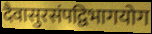
दैवासुरसंपद्विभागयोग